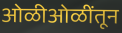
ओळीओळींतून